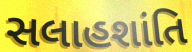
સલાહશાંતિ